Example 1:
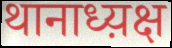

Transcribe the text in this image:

थानाध्य़क्ष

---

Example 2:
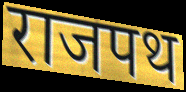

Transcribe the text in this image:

राजपथ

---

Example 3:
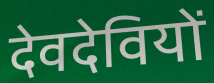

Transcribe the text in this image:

देवदेवियों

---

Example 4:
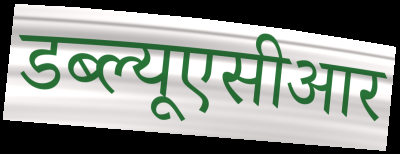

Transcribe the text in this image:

डब्ल्यूएसीआर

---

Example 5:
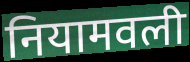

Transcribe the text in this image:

नियामवली